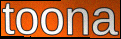
toona